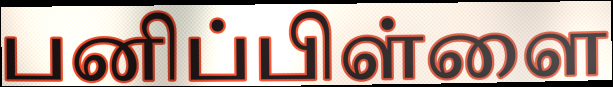
பனிப்பிள்ளை